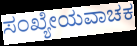
ಸಂಖ್ಯೇಯವಾಚಕ